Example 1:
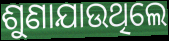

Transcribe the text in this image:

ଶୁଣାଯାଉଥିଲେ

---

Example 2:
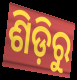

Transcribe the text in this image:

ଶିଡ଼ିରୁ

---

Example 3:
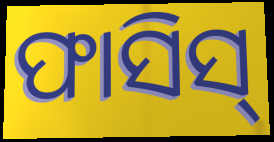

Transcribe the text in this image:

ଫାସିସ୍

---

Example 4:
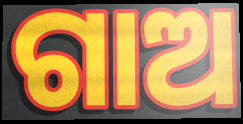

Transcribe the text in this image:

ଗାଅ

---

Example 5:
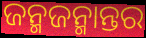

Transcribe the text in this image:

ଜନ୍ମଜନ୍ମାନ୍ତର